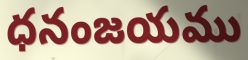
ధనంజయము